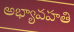
అభ్యావహతి